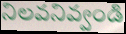
నిలవనివ్వండి